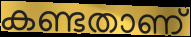
കണ്ടതാണ്